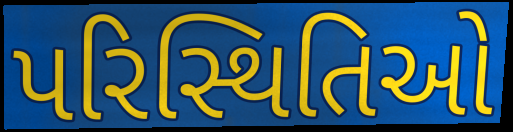
પરિસ્થિતિઓ